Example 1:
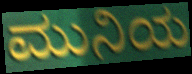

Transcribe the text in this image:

ಮುನಿಯ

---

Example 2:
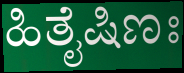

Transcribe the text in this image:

ಹಿತೈಷಿಣಃ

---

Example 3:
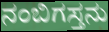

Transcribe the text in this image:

ನಂಬಿಗಸ್ತನು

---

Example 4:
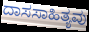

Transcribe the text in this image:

ದಾಸಸಾಹಿತ್ಯವು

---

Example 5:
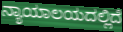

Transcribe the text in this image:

ನ್ಯಾಯಾಲಯದಲ್ಲಿದೆ